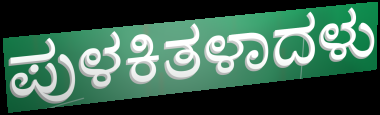
ಪುಳಕಿತಳಾದಳು